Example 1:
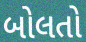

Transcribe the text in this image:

બોલતો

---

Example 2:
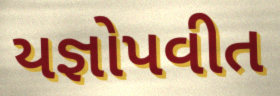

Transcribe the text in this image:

યજ્ઞોપવીત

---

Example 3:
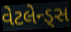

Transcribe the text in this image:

વેટલેન્ડ્સ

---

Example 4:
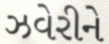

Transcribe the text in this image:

ઝવેરીને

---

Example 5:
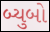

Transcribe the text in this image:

બ્યુબો